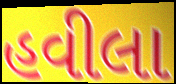
હવીલા